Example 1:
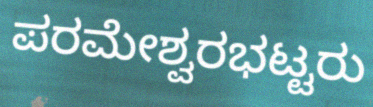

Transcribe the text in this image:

ಪರಮೇಶ್ವರಭಟ್ಟರು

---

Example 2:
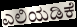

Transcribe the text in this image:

ಎಲಿಯಡಿಕೆ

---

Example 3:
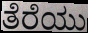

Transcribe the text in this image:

ತೆರೆಯು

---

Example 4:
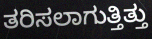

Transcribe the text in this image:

ತರಿಸಲಾಗುತ್ತಿತ್ತು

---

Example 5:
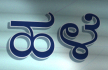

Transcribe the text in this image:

ಹಳೆ